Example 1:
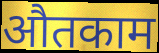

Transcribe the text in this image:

औतकाम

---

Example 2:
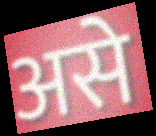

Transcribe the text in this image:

असे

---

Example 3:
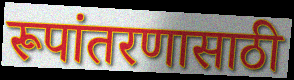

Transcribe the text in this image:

रूपांतरणासाठी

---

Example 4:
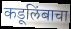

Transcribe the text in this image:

कडूलिंबाचा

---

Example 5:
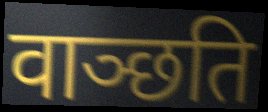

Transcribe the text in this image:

वाञ्छति